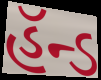
હૅન્ડ